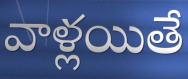
వాళ్లయితే